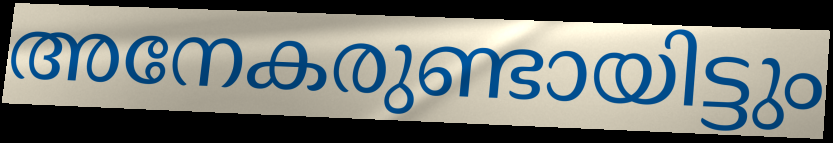
അനേകരുണ്ടായിട്ടും